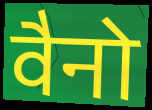
वैनो